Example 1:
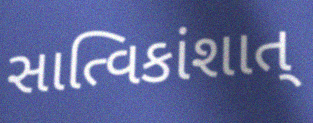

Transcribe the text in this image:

સાત્વિકાંશાત્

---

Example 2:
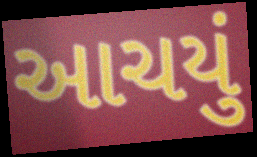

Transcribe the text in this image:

આચયું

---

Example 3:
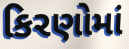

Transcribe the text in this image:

કિરણોમાં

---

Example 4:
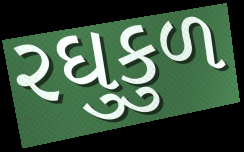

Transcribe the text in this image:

રઘુકુળ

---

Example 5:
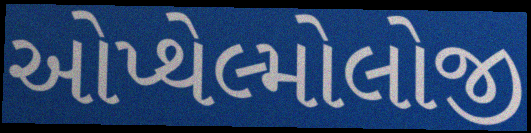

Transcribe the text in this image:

ઓપ્થેલ્મોલોજી